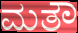
ಮತೌ